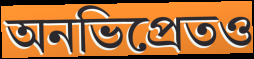
অনভিপ্রেতও